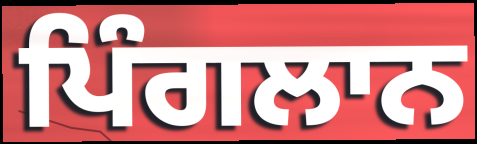
ਪਿੰਗਲਾਨ